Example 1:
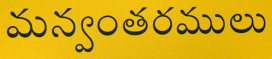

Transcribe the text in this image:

మన్వంతరములు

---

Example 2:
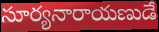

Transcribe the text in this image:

సూర్యనారాయణుడే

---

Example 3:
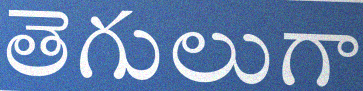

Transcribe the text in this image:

తెగులుగా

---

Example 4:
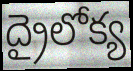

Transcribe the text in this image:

ద్రైలోక్య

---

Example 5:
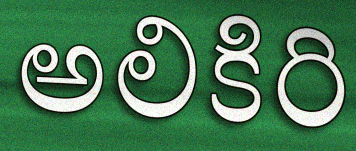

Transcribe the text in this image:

అలికిరి